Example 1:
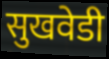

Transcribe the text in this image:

सुखवेडी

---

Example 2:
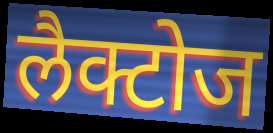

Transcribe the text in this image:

लैक्टोज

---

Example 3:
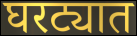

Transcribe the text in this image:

घरट्यात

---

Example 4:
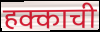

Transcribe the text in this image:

हक्काची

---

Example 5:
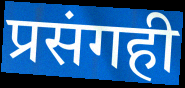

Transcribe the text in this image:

प्रसंगही